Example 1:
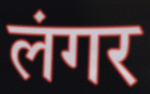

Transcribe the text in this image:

लंगर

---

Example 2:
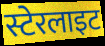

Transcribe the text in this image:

स्टेरलाइट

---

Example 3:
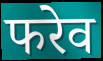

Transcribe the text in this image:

फरेव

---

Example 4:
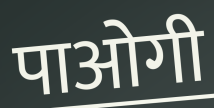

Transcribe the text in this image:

पाओगी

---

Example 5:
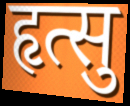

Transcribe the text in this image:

हृत्सु